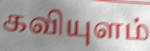
கவியுளம்